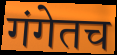
गंगेतच